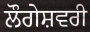
ਲੌਗੇਸ਼ਵਰੀ